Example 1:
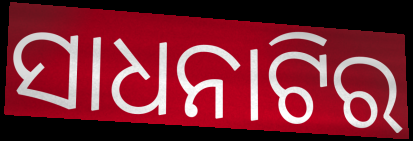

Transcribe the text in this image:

ସାଧନାଟିର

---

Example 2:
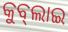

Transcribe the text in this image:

କୁବ୍‌ଲାଇ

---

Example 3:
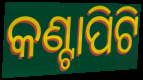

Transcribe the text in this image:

କଣ୍ଟାପିଟି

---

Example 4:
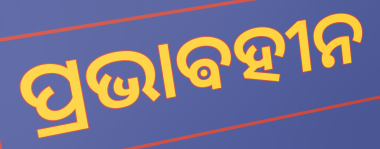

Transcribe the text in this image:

ପ୍ରଭାଵହୀନ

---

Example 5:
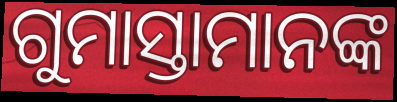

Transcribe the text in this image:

ଗୁମାସ୍ତାମାନଙ୍କ